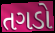
તગડો